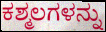
ಕಶ್ಮಲಗಳನ್ನು